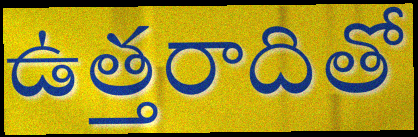
ఉత్తరాదితో